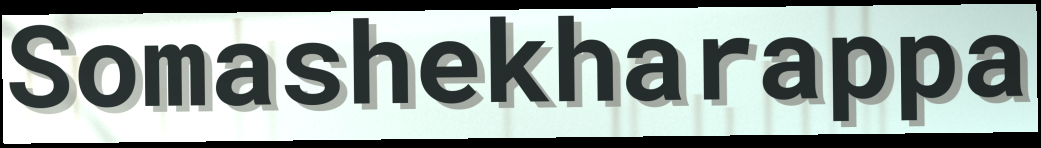
Somashekharappa